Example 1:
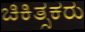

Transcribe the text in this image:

ಚಿಕಿತ್ಸಕರು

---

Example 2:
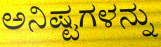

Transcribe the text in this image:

ಅನಿಷ್ಟಗಳನ್ನು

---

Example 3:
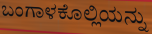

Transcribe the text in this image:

ಬಂಗಾಳಕೊಲ್ಲಿಯನ್ನು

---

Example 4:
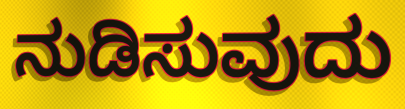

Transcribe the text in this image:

ನುಡಿಸುವುದು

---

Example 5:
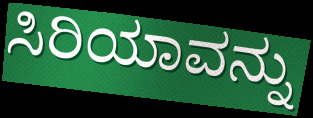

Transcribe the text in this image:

ಸಿರಿಯಾವನ್ನು